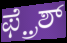
ಫ಼್ರೆಶ್